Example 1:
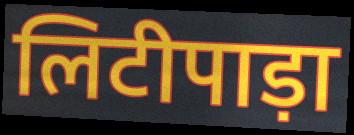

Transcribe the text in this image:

लिटीपाड़ा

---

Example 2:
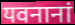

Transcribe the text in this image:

यवनानां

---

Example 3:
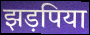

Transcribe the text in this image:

झड़पिया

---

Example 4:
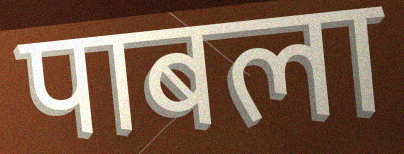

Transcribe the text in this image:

पाबला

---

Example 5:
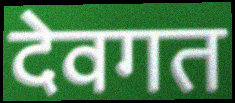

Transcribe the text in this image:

देवगत